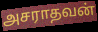
அசராதவன்